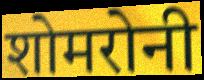
शोमरोनी